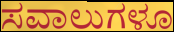
ಸವಾಲುಗಳೂ